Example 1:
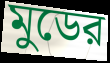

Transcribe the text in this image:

মুডের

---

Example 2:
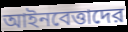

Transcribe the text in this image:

আইনবেত্তাদের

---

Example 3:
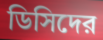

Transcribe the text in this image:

ডিসিদের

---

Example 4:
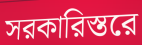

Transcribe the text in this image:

সরকারিস্তরে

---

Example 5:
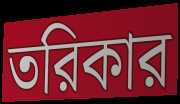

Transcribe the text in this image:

তরিকার